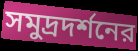
সমুদ্রদর্শনের